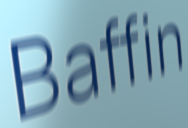
Baffin